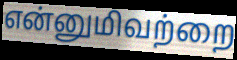
என்னுமிவற்றை